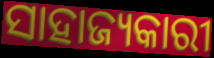
ସାହାଜ୍ଯକାରୀ